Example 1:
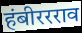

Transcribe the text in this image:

हंबीररराव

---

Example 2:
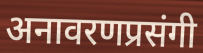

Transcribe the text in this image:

अनावरणप्रसंगी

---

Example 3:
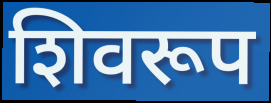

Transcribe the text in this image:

शिवरूप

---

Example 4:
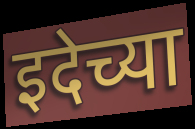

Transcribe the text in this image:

इदेच्या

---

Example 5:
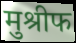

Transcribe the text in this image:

मुश्रीफ